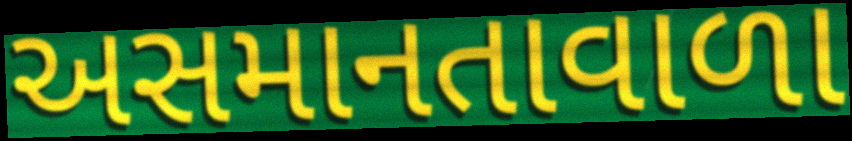
અસમાનતાવાળા